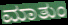
ಮಾತುಂ